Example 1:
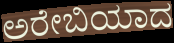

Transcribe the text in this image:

ಅರೇಬಿಯಾದ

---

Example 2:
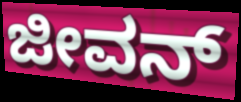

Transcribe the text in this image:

ಜೀವನ್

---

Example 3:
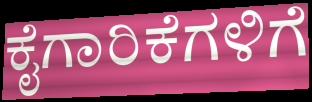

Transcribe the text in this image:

ಕೈಗಾರಿಕೆಗಳಿಗೆ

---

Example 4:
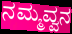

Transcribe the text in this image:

ನಮ್ಮವ್ವನ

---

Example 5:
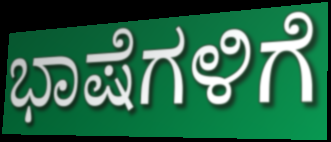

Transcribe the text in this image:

ಭಾಷೆಗಳಿಗೆ